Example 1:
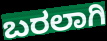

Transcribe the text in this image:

ಬರಲಾಗಿ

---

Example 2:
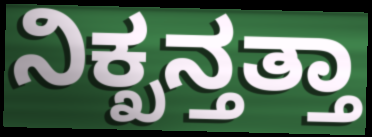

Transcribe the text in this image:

ನಿಕ್ಖನ್ತತ್ತಾ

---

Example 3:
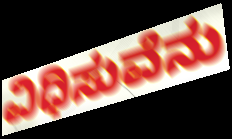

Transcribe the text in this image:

ವಿಧಿಸುವೆನು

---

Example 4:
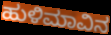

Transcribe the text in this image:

ಹುಳಿಮಾವಿನ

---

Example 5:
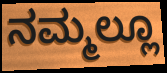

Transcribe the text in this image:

ನಮ್ಮಲ್ಲೂ